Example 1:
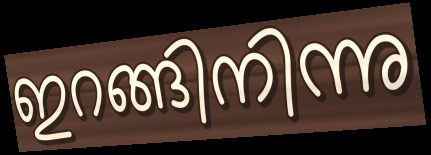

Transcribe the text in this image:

ഇറങ്ങിനിന്നു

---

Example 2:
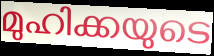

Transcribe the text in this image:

മുഹിക്കയുടെ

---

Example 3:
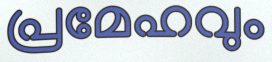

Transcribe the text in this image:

പ്രമേഹവും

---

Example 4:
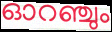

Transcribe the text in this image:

ഓറഞ്ചും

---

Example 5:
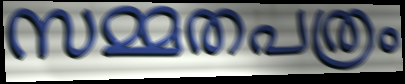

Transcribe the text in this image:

സമ്മതപത്രം